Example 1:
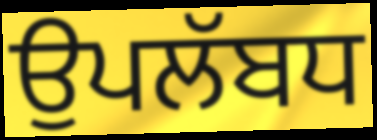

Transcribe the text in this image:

ਉਪਲੱਬਧ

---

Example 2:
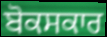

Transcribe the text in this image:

ਬੋਕਸਕਾਰ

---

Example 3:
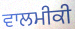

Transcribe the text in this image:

ਵਾਲਮੀਕੀ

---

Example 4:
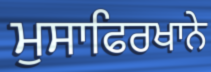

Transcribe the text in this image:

ਮੁਸਾਫਿਰਖਾਨੇ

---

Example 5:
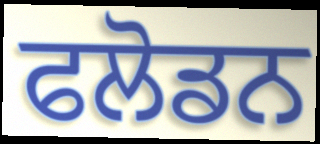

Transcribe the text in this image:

ਫਲੋਡਨ